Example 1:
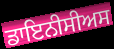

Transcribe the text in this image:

ਡਾਇਨੀਸੀਅਸ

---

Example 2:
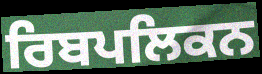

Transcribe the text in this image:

ਰਿਬਪਲਿਕਨ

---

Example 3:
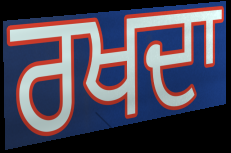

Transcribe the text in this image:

ਰਖਦਾ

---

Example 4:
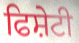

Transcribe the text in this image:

ਫਿਸ਼ੇਟੀ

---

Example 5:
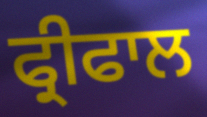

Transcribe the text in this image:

ਫ੍ਰੀਫਾਲ